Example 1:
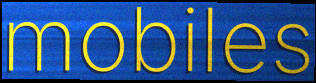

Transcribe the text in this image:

mobiles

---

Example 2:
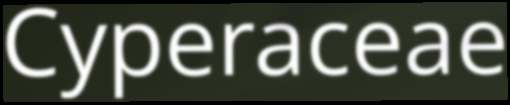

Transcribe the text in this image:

Cyperaceae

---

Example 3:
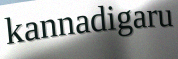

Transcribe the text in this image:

kannadigaru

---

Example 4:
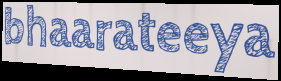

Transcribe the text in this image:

bhaarateeya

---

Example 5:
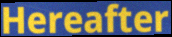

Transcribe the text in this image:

Hereafter